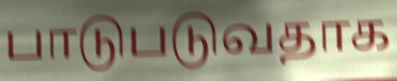
பாடுபடுவதாக